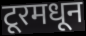
टूरमधून